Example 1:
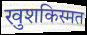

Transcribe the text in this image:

खुशकिस्मत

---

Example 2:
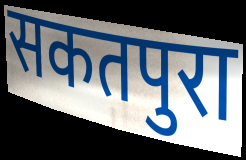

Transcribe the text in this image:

सकतपुरा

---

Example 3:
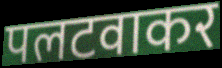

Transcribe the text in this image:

पलटवाकर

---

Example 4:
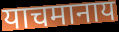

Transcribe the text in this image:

याचमानाय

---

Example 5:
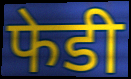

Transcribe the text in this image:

फेडी